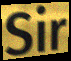
Sir